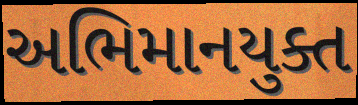
અભિમાનયુક્ત